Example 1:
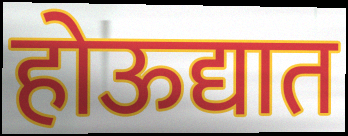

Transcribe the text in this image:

होऊद्यात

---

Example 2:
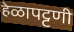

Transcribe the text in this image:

हेळापट्टणी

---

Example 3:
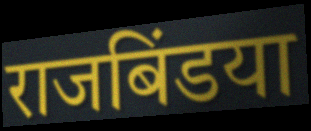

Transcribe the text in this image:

राजबिंडया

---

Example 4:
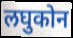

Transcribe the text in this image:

लघुकोन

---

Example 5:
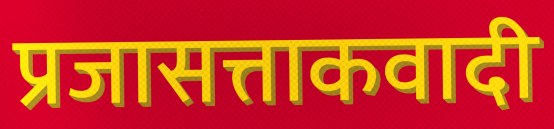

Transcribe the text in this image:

प्रजासत्ताकवादी